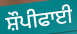
ਸ਼ੌਪੀਫਾਈ